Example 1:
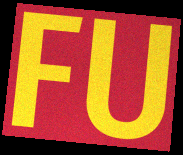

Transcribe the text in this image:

FU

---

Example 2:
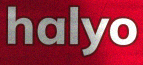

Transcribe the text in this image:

halyo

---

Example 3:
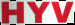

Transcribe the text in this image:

HYV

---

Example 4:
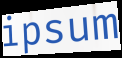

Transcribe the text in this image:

ipsum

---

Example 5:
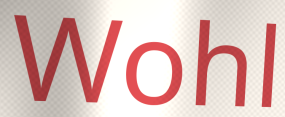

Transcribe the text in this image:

Wohl